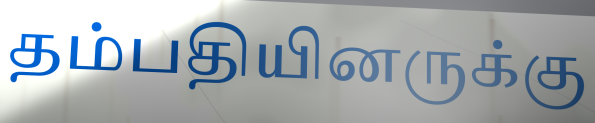
தம்பதியினருக்கு